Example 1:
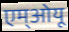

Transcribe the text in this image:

एम्ओयू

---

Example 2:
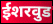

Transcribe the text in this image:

ईशरवुड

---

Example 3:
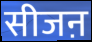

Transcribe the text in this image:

सीजऩ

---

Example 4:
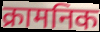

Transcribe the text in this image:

क्रामनिक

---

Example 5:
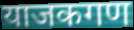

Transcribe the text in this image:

याजकगण